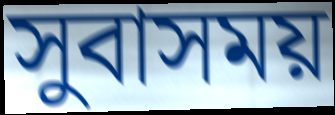
সুবাসময়